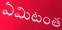
ఏమిటంత